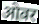
ओवर